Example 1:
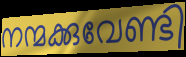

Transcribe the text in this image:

നന്മക്കുവേണ്ടി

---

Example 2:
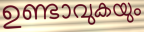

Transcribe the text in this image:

ഉണ്ടാവുകയും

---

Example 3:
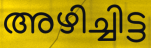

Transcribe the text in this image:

അഴിച്ചിട്ട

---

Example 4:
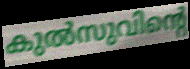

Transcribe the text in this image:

കുൽസുവിന്റെ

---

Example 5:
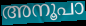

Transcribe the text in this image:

അനൂപാ